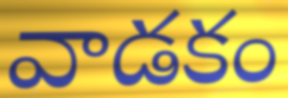
వాడకం